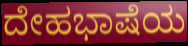
ದೇಹಭಾಷೆಯ